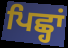
ਪਿਛ੍ਹਾਂ